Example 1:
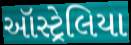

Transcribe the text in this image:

ઑસ્ટ્રેલિયા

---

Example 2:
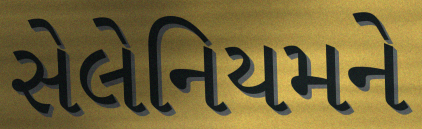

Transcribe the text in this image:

સેલેનિયમને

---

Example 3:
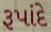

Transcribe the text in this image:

રૂપાંદે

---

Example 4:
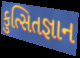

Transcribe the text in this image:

કુત્સિતજ્ઞાન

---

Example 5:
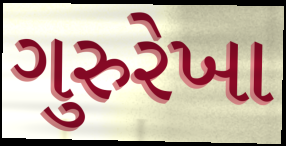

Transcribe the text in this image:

ગુરુરેખા